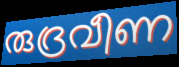
രുദ്രവീണ